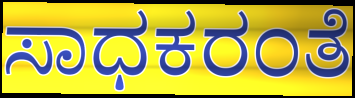
ಸಾಧಕರಂತೆ